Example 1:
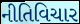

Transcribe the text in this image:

નીતિવિચાર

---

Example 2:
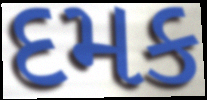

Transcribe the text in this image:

દમક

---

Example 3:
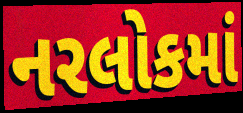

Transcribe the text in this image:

નરલોકમાં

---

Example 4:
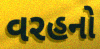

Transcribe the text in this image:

વરહનો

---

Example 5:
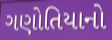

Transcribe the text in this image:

ગણોતિયાનો